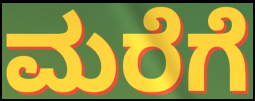
ಮರೆಗೆ